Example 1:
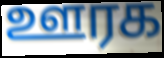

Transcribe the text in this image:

ஊரக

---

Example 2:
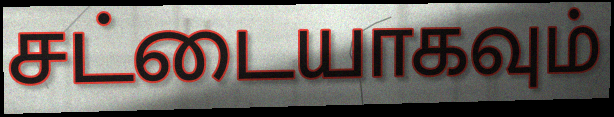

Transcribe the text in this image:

சட்டையாகவும்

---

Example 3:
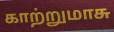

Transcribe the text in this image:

காற்றுமாசு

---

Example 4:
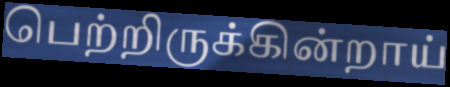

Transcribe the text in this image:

பெற்றிருக்கின்றாய்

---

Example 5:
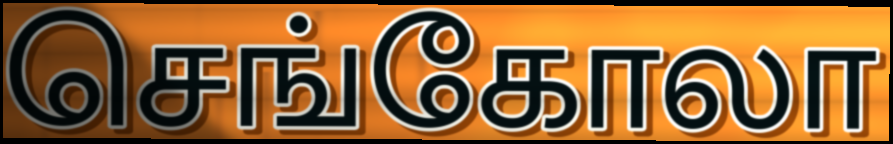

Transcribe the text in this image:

செங்கோலா